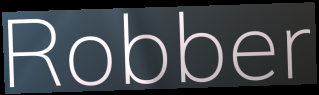
Robber